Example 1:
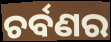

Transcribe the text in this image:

ଚର୍ବଣର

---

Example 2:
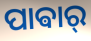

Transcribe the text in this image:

ପାଵାର୍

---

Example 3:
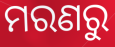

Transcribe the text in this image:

ମରଣରୁ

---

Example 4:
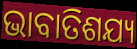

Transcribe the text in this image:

ଭାବାତିଶଯ୍ୟ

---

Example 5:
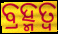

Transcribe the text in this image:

ବ୍ରହ୍ମତ୍ୱ